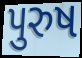
પુરુષ